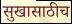
सुखासाठीच